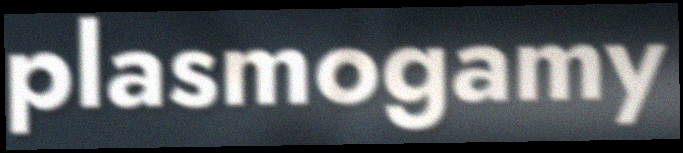
plasmogamy